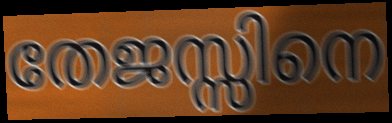
തേജസ്സിനെ